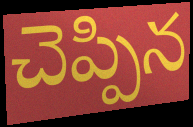
చెప్పిన